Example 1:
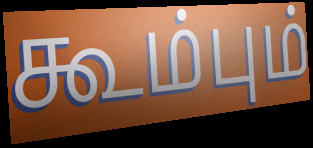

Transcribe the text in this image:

கூம்பும்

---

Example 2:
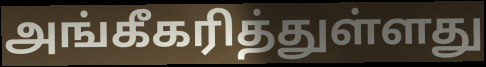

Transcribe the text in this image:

அங்கீகரித்துள்ளது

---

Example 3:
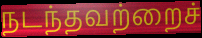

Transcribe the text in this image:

நடந்தவற்றைச்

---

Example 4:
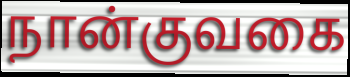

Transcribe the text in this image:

நான்குவகை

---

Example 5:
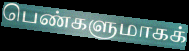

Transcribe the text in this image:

பெண்களுமாகக்